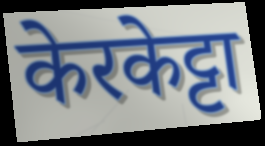
केरकेट्टा